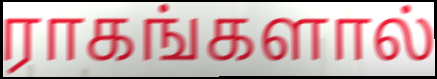
ராகங்களால்